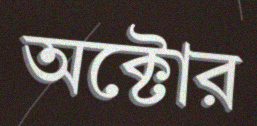
অক্টোর